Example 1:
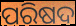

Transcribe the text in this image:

ପରିଷଦ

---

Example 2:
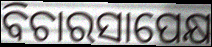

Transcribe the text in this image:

ବିଚାରସାପେକ୍ଷ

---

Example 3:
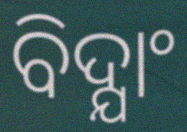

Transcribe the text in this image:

ବିଦ୍ଯାଂ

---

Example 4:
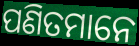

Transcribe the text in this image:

ପଣିତମାନେ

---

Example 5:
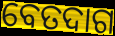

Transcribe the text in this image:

ବେତଦାଗ